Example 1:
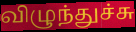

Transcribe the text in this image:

விழுந்துச்சு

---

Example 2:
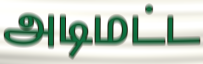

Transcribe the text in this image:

அடிமட்ட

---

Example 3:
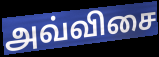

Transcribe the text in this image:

அவ்விசை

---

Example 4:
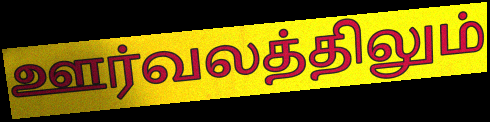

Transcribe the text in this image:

ஊர்வலத்திலும்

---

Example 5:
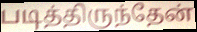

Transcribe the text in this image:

படித்திருந்தேன்